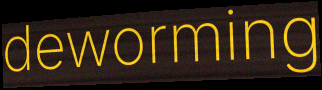
deworming